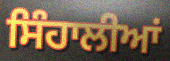
ਸਿੰਹਾਲੀਆਂ